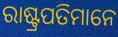
ରାଷ୍ଟ୍ରପତିମାନେ